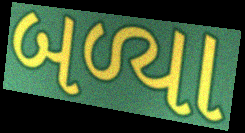
બળ્યા